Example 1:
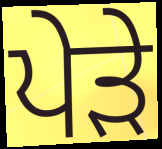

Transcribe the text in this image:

ਪੇੜੇ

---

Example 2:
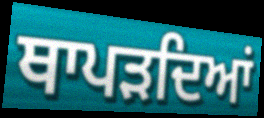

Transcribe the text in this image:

ਥਾਪੜਦਿਆਂ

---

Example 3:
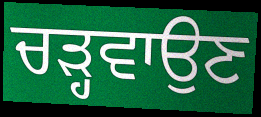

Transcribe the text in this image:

ਚੜ੍ਹਵਾਉਣ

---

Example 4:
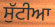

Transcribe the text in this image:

ਸੁੱਟੀਆ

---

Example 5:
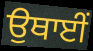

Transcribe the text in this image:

ਉਥਾਈਂ